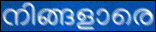
നിങ്ങളാരെ